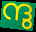
ന്ദു